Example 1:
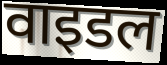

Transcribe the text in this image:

वाइडल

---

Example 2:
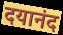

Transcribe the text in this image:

दयानंद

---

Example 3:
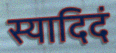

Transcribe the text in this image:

स्यादिदं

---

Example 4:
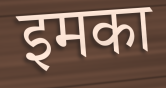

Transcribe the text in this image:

इमका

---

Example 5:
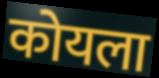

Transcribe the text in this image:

कोयला